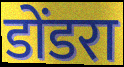
डोंडरा